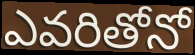
ఎవరితోనో